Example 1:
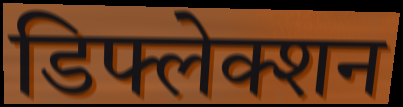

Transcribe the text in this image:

डिफ्लेक्शन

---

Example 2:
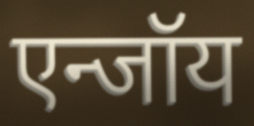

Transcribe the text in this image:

एन्जॉय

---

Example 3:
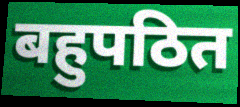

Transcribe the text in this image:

बहुपठित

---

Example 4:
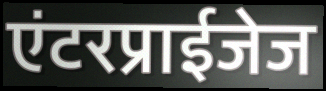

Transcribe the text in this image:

एंटरप्राईजेज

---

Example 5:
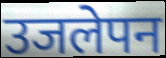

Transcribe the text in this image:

उजलेपन